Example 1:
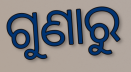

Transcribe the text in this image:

ଗୁଣାରୁ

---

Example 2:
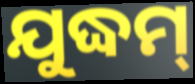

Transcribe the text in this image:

ଯୁଦ୍ଧମ୍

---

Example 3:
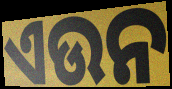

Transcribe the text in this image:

ଏଉନ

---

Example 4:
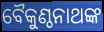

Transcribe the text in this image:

ବୈକୁଣ୍ଠନାଥଙ୍କ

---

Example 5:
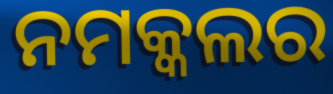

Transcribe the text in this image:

ନମକ୍କଲର